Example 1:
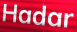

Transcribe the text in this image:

Hadar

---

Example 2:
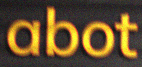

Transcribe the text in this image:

abot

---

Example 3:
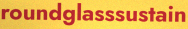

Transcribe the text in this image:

roundglasssustain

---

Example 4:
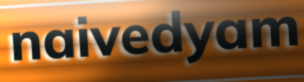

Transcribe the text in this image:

naivedyam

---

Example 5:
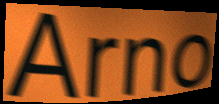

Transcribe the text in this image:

Arno